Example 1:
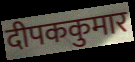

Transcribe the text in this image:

दीपककुमार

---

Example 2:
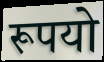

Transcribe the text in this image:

रूपयो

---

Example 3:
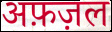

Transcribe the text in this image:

अफ़ज़ल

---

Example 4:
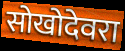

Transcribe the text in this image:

सोखोदेवरा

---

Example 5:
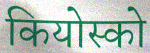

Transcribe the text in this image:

कियोस्को